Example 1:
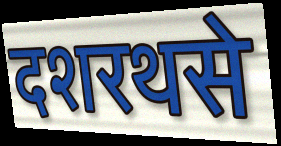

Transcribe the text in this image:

दशरथसे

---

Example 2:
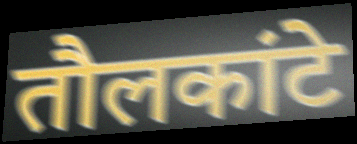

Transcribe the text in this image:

तौलकांटे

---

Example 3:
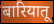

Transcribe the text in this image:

बारियातू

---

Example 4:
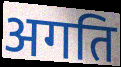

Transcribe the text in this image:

अगति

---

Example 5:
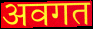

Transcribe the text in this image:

अवगत